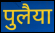
पुलैया